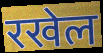
रखेल